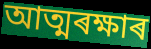
আত্মৰক্ষাৰ